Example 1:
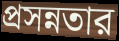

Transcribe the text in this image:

প্রসন্নতার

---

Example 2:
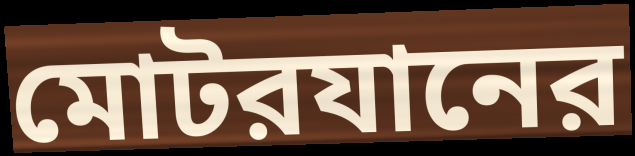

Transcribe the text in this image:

মোটরযানের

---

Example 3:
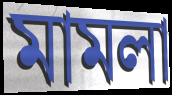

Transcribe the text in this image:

মামলা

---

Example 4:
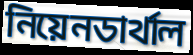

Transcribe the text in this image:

নিয়েনডার্থাল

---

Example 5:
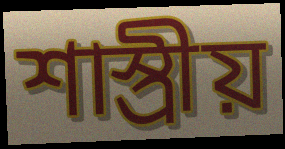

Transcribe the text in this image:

শাস্ত্রীয়